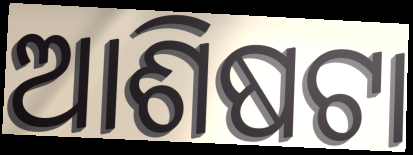
ଆଶିଷଟା